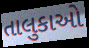
તાલુકાઓ